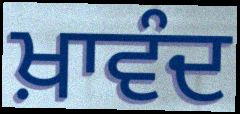
ਖ਼ਾਵੰਦ